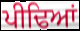
ਪੀਢਿਆਂ